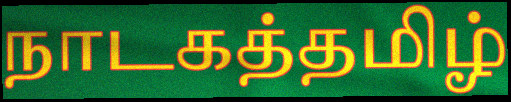
நாடகத்தமிழ்